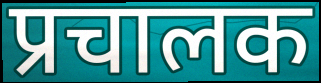
प्रचालक